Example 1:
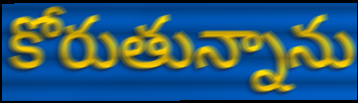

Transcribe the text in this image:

కోరుతున్నాను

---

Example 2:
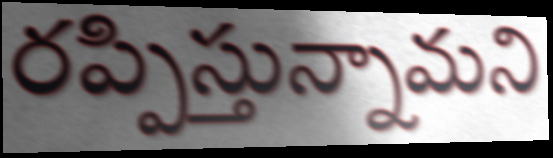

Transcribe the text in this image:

రప్పిస్తున్నామని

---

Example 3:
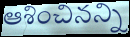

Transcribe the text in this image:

ఆశించినన్ని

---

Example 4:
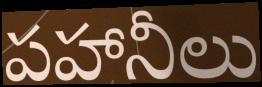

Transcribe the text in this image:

పహానీలు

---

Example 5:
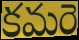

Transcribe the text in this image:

కమరె